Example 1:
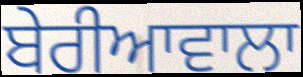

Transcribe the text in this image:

ਬੇਰੀਆਵਾਲਾ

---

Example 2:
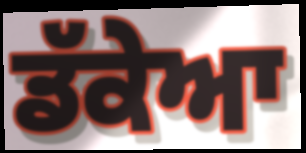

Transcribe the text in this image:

ਡੱਕੇਆ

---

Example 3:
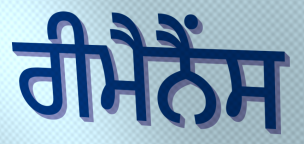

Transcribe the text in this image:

ਰੀਮੈਨੈਂਸ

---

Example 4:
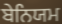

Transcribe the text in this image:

ਬੇਨਿਯਮ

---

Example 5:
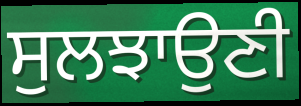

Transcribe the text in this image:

ਸੁਲਝਾਉਣੀ